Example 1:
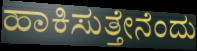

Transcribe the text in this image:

ಹಾಕಿಸುತ್ತೇನೆಂದು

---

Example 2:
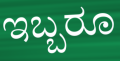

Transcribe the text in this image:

ಇಬ್ಬರೂ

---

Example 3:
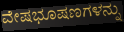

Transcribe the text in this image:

ವೇಷಭೂಷಣಗಳನ್ನು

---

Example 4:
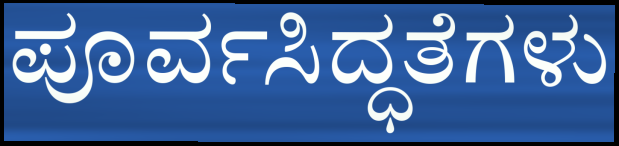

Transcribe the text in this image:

ಪೂರ್ವಸಿದ್ಧತೆಗಳು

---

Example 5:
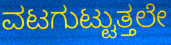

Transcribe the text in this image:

ವಟಗುಟ್ಟುತ್ತಲೇ